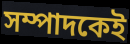
সম্পাদকেই